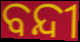
ବନ୍ଦୀ